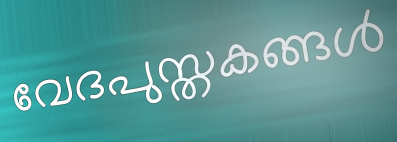
വേദപുസ്തകങ്ങൾ